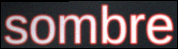
sombre